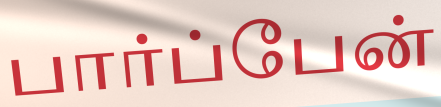
பார்ப்பேன்